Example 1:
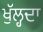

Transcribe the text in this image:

ਖੁੱਲ੍ਹਦਾ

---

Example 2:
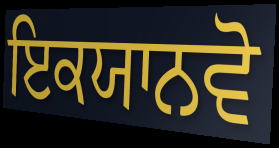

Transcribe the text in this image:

ਇਕਯਾਨਵੋ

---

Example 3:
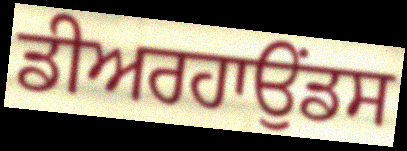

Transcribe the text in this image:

ਡੀਅਰਹਾਉਂਡਸ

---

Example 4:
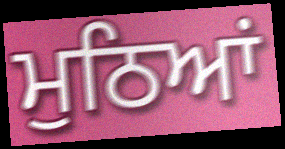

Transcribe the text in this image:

ਮੁਠਿਆਂ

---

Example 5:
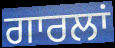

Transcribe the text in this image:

ਗਾਰਲਾਂ